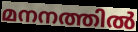
മനനത്തിൽ